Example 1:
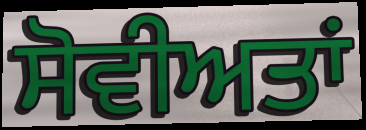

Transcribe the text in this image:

ਸੋਵੀਅਤਾਂ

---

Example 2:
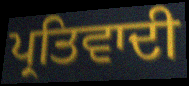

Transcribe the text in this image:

ਪ੍ਰਤਿਵਾਦੀ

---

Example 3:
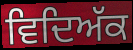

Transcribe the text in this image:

ਵਿਦਿਅੱਕ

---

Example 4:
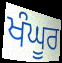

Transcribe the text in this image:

ਖੰਘੂਰ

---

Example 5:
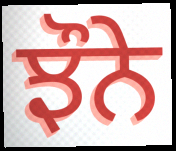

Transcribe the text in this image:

ਝੌਨੇ